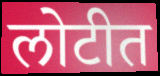
लोटीत